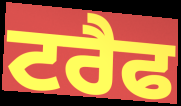
ਟਰੈਫ